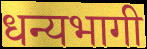
धन्यभागी